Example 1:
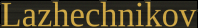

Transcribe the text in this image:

Lazhechnikov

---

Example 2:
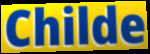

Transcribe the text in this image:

Childe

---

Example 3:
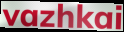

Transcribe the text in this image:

vazhkai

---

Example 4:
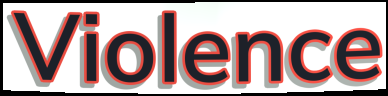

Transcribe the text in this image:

Violence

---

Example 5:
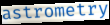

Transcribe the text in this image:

astrometry